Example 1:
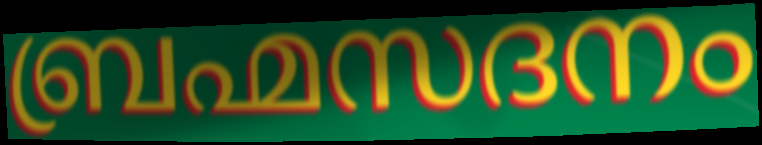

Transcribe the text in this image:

ബ്രഹ്മസദനം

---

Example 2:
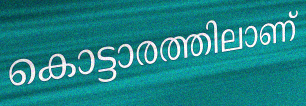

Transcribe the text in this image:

കൊട്ടാരത്തിലാണ്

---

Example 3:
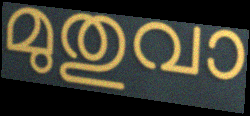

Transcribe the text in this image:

മുതുവാ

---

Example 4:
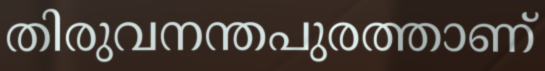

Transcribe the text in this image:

തിരുവനന്തപുരത്താണ്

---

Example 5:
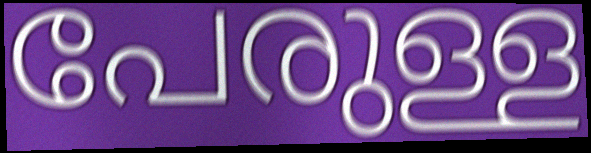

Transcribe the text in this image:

പേരുള്ള